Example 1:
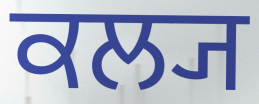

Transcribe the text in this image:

ਕਲ੍ਯ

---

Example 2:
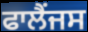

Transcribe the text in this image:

ਫਾਲੈਂਜਸ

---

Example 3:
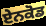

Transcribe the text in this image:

ਏਨਕੋਡ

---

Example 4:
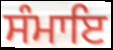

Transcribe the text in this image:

ਸੰਮਾਇ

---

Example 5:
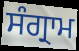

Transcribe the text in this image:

ਸੰਗ੍ਰਾਮ